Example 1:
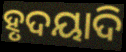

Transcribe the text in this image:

ହୃଦୟାଦି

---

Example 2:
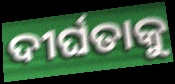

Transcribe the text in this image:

ଦୀର୍ଘତାକୁ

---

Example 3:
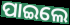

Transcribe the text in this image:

ପାଇଲେ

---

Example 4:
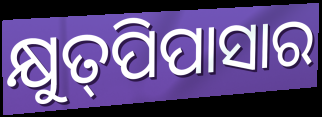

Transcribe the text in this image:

କ୍ଷୁତ୍‌ପିପାସାର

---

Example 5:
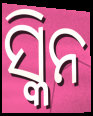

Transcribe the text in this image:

ସ୍କିନ